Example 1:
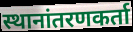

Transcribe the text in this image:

स्थानांतरणकर्ता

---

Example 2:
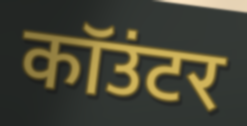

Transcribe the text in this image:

कॉउंटर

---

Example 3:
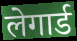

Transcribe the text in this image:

लेगार्ड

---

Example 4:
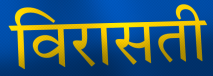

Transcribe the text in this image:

विरासती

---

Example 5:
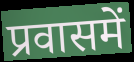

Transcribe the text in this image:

प्रवासमें